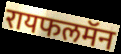
रायफलमॅन